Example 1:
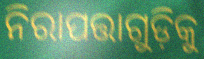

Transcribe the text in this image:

ନିରାପତ୍ତାଗୁଡ଼ିକୁ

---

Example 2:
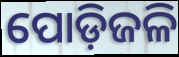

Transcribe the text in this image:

ପୋଡ଼ିଜଳି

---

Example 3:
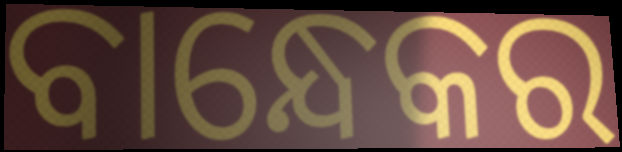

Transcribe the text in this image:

ବାନ୍ଧେକର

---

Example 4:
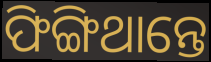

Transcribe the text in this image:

ଫିଙ୍ଗିଥାନ୍ତେ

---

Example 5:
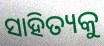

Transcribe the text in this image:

ସାହିତ୍ୟକୁ